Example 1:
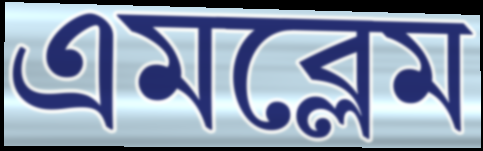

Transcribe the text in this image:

এমব্লেম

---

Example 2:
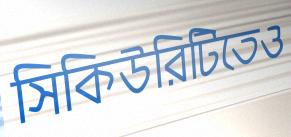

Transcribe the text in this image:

সিকিউরিটিতেও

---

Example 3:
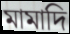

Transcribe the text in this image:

মামাদি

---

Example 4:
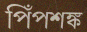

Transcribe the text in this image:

পিঁপশঙ্ক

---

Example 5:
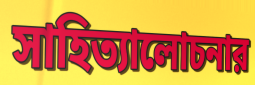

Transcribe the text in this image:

সাহিত্যালোচনার